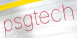
psgtech